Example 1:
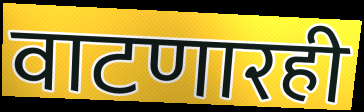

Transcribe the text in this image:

वाटणारही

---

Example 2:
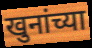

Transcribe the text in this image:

खुनांच्या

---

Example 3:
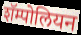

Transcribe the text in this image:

शॅम्पोलियन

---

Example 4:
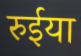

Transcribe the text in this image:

रुईया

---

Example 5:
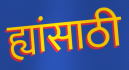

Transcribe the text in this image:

ह्यांसाठी